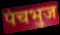
पंचभुज